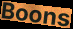
Boons